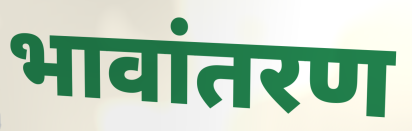
भावांतरण